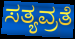
ಸತ್ಯವ್ರತೆ